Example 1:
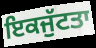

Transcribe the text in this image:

ਇਕਜੁੱਟਤਾ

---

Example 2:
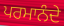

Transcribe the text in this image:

ਪਰਮਾਨੰਦੇ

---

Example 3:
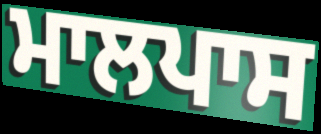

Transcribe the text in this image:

ਮਾਲਪਾਸ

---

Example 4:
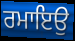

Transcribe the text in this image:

ਰਮਾਇਉ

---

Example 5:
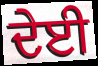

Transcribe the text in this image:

ਦੇਈ